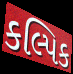
કલ્પિક